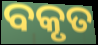
ବକୃତ